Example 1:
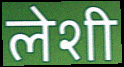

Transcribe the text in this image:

लेशी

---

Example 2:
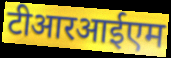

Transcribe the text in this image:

टीआरआईएम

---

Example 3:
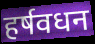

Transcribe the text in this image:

हर्षवधन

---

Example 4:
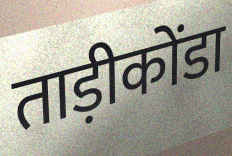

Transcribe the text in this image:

ताड़ीकोंडा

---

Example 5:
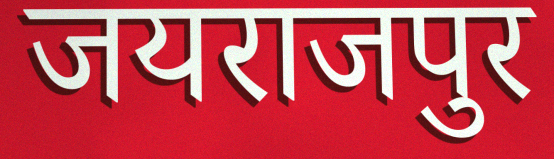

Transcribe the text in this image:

जयराजपुर